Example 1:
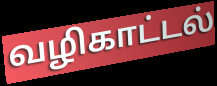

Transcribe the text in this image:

வழிகாட்டல்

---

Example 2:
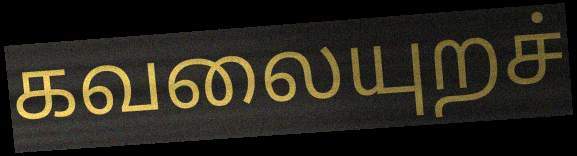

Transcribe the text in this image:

கவலையுறச்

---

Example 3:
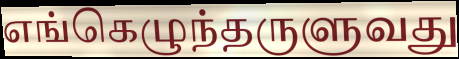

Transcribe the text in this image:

எங்கெழுந்தருளுவது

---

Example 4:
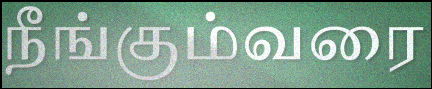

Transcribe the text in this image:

நீங்கும்வரை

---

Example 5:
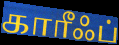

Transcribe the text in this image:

காரீஃப்